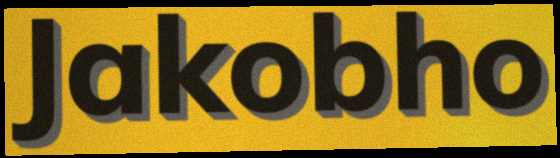
Jakobho